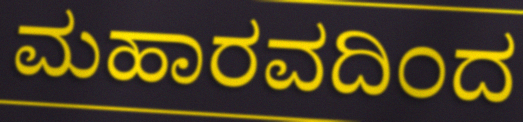
ಮಹಾರವದಿಂದ